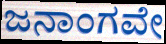
ಜನಾಂಗವೇ